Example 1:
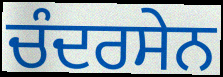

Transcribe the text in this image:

ਚੰਦਰਸੇਨ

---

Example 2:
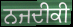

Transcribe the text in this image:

ਨਜਦੀਕੀ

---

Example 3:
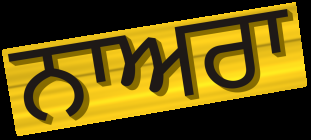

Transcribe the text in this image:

ਨਾਅਰਾ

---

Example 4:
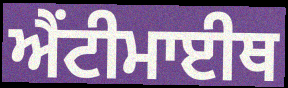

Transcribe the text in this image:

ਐਂਟੀਮਾਈਥ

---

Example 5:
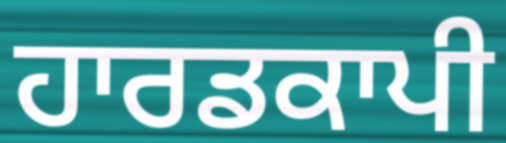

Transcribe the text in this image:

ਹਾਰਡਕਾਪੀ